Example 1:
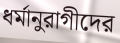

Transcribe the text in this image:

ধর্মানুরাগীদের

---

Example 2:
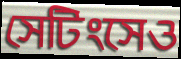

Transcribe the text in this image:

সেটিংসেও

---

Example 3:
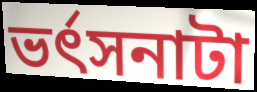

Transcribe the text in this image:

ভর্ৎসনাটা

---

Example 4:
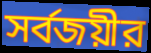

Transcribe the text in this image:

সর্বজয়ীর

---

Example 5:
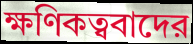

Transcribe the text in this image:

ক্ষণিকত্ববাদের